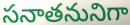
సనాతనునిగా